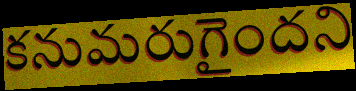
కనుమరుగైందని